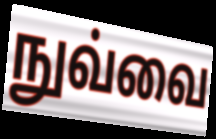
நுவ்வை